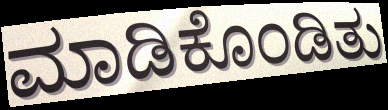
ಮಾಡಿಕೊಂಡಿತು